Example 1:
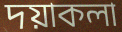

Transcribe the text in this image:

দয়াকলা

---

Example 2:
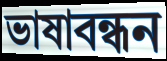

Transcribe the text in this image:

ভাষাবন্ধন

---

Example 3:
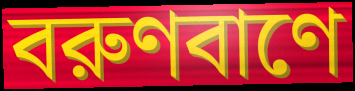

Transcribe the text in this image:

বরুণবাণে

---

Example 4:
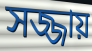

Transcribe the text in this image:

সজ্জায়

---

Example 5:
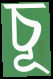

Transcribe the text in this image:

চূ